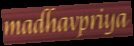
madhavpriya